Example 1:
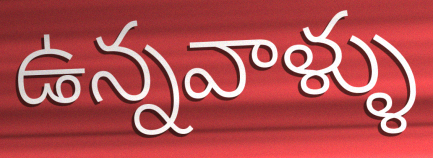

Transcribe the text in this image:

ఉన్నవాళ్ళు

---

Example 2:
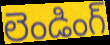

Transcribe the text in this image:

లెండింగ్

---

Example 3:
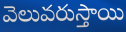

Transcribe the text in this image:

వెలువరుస్తాయి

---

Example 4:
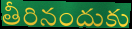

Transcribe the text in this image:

తీరినందుకు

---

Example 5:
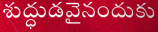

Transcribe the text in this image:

శుద్ధుడవైనందుకు